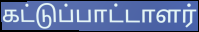
கட்டுப்பாட்டாளர்